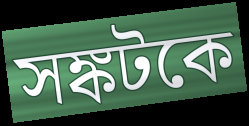
সঙ্কটকে